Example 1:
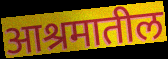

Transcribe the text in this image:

आश्रमातील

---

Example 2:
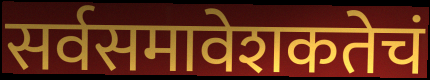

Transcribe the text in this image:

सर्वसमावेशकतेचं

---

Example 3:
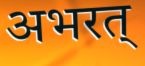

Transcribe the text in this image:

अभरत्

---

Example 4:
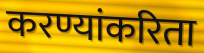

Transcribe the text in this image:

करण्यांकरिता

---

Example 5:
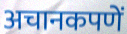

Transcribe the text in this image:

अचानकपणें